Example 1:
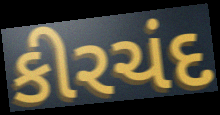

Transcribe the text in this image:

કીરચંદ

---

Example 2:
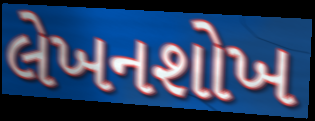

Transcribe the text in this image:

લેખનશોખ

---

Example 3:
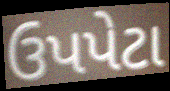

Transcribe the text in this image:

ઉપપેટા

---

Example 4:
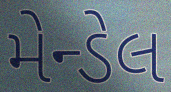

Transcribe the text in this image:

મેન્ડેલ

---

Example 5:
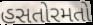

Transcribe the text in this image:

હસતોરમતો